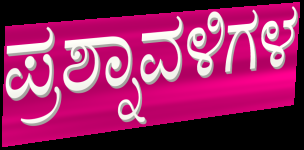
ಪ್ರಶ್ನಾವಳಿಗಳ